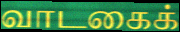
வாடகைக்